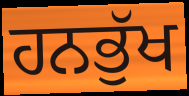
ਹਨਭੁੱਖ